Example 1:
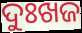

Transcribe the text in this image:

ଦୁଃଖଜ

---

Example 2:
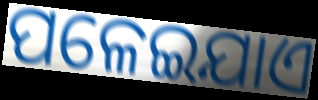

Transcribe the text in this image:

ପଳେଇଯାଏ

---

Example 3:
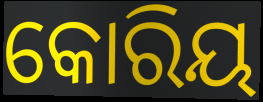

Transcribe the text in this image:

କୋରିୟ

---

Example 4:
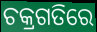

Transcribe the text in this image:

ଚକ୍ରଗତିରେ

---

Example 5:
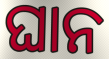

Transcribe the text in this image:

ଘାନ